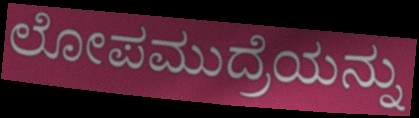
ಲೋಪಮುದ್ರೆಯನ್ನು